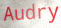
Audry